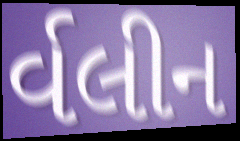
ર્વલીન